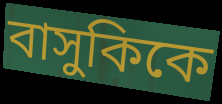
বাসুকিকে